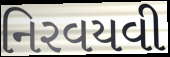
નિરવયવી